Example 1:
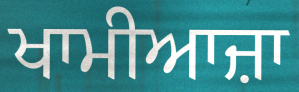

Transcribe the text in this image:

ਖਾਮੀਆਜ਼ਾ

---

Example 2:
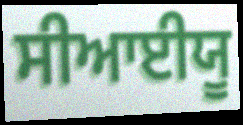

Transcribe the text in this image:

ਸੀਆਈਯੂ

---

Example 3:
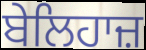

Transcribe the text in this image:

ਬੇਲਿਹਾਜ਼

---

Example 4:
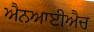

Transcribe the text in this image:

ਐਨਆਈਐਚ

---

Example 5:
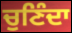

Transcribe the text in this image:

ਚੁਣਿੰਦਾ